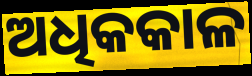
ଅଧିକକାଳ